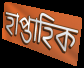
হাপ্তাহিক